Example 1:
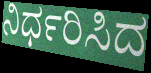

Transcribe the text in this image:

ನಿರ್ಧರಿಸಿದ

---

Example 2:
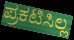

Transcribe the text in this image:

ಪ್ರಕಟಿಸಿಲ್ಲ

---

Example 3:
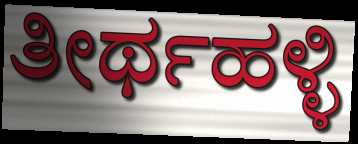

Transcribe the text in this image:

ತೀರ್ಥಹಳ್ಳಿ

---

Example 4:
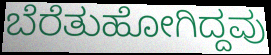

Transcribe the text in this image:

ಬೆರೆತುಹೋಗಿದ್ದವು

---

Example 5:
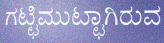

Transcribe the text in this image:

ಗಟ್ಟಿಮುಟ್ಟಾಗಿರುವ